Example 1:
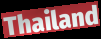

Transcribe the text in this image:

Thailand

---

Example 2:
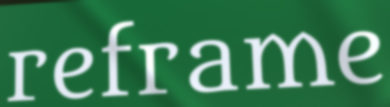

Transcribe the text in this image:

reframe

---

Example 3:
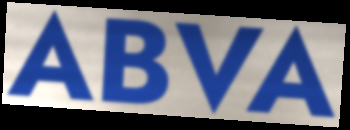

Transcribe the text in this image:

ABVA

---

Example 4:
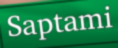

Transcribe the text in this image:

Saptami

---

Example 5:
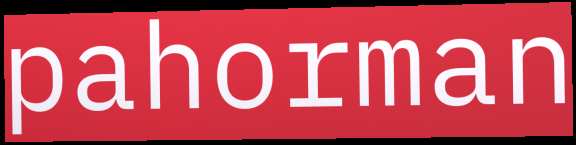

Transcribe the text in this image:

pahorman